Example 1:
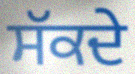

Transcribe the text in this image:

ਸੱਕਦੇ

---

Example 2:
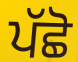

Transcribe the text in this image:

ਪੱਛੋ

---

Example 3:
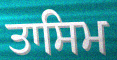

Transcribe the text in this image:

ਤਾਸਿਮ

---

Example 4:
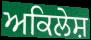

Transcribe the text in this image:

ਅਕਿਲੇਸ਼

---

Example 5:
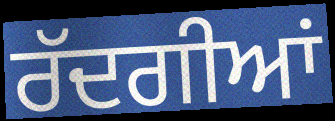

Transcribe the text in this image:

ਰੱਦਗੀਆਂ